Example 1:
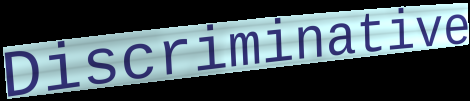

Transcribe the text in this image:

Discriminative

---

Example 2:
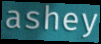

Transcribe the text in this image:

ashey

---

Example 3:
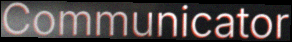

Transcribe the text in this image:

Communicator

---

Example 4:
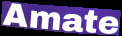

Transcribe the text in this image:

Amate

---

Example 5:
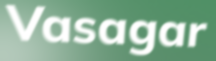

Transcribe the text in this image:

Vasagar